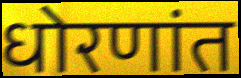
धोरणांत